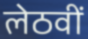
लेठवीं